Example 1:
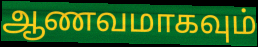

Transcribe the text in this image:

ஆணவமாகவும்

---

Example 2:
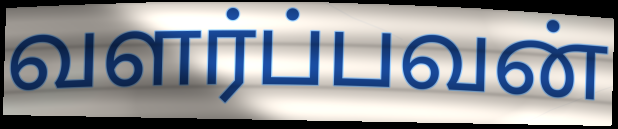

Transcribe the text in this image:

வளர்ப்பவன்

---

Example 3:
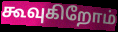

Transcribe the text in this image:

கூவுகிறோம்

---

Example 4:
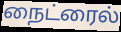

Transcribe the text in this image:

நைட்ரைல்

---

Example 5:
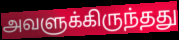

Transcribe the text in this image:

அவளுக்கிருந்தது